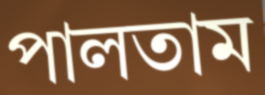
পালতাম